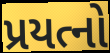
પ્રયત્નો